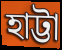
হাট্টা